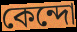
কেন্দো